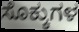
ಸೊಕ್ಕುಗಳ